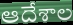
ఆదేశాల